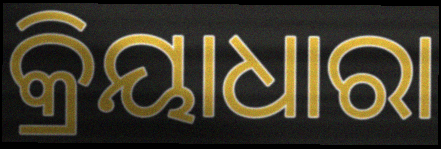
କ୍ରିୟାଧାରା